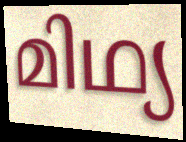
മിഥ്യ